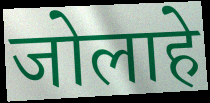
जोलाहे